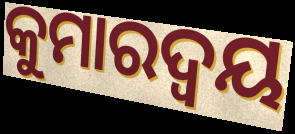
କୁମାରଦ୍ଵୟ